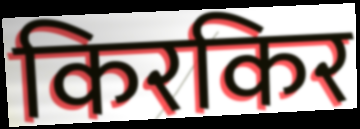
किरकिर